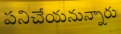
పనిచేయనున్నారు